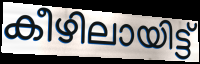
കീഴിലായിട്ട്